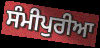
ਸੰਮੀਪੁਰੀਆ